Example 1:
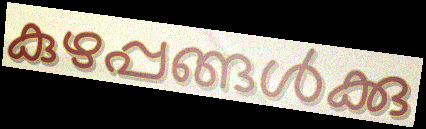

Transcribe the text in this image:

കുഴപ്പങ്ങൾക്കു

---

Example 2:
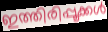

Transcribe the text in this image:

ഇത്തിരിപ്പൂക്കൾ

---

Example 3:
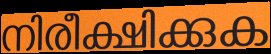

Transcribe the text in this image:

നിരീക്ഷിക്കുക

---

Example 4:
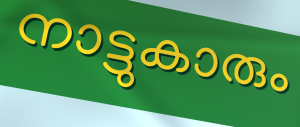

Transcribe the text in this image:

നാട്ടുകാരും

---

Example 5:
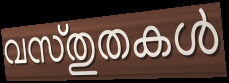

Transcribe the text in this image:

വസ്തുതകൾ